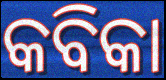
କବିକା